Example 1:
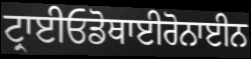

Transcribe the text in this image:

ਟ੍ਰਾਈਓਡੋਥਾਈਰੋਨਾਈਨ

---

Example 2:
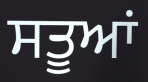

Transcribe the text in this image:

ਸਤੂਆਂ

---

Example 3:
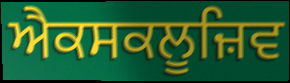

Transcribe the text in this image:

ਐਕਸਕਲੂਜ਼ਿਵ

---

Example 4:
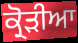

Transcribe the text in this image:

ਕ੍ਰੋੜੀਆ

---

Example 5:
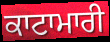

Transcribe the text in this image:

ਕਾਟਾਮਾਰੀ